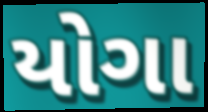
યોગા